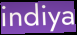
indiya